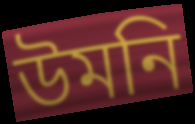
উমনি